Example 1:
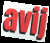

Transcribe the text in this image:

avij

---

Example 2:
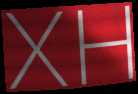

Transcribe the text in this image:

XH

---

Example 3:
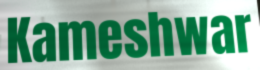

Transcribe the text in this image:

Kameshwar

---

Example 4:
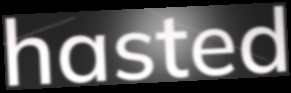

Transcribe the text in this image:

hasted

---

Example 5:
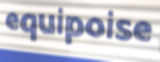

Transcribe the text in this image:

equipoise